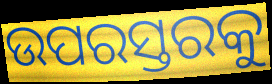
ଉପରସ୍ତରକୁ